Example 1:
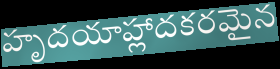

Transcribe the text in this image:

హృదయాహ్లాదకరమైన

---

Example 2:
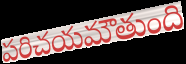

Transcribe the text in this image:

పరిచయమౌతుంది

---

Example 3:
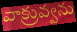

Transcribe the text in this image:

వాక్రువ్వను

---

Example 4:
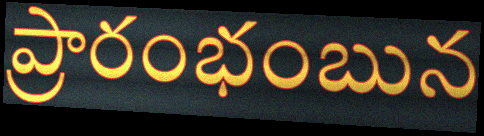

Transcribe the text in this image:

ప్రారంభంబున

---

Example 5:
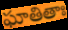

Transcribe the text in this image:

ఘాతితాః